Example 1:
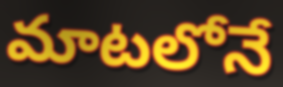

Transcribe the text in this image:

మాటలోనే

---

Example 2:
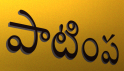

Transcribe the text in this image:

పాటింప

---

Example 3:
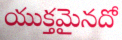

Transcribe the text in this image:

యుక్తమైనదో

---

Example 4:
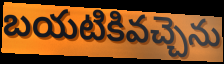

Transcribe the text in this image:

బయటికివచ్చెను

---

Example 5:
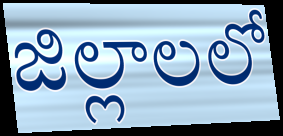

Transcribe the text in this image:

జిల్లాలలో